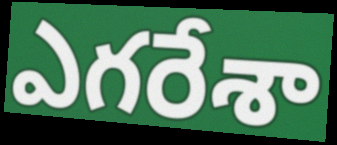
ఎగరేశా